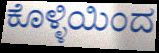
ಕೊಳ್ಳಿಯಿಂದ